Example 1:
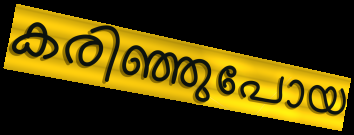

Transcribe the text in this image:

കരിഞ്ഞുപോയ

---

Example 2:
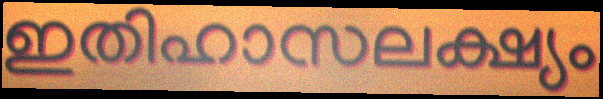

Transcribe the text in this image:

ഇതിഹാസലക്ഷ്യം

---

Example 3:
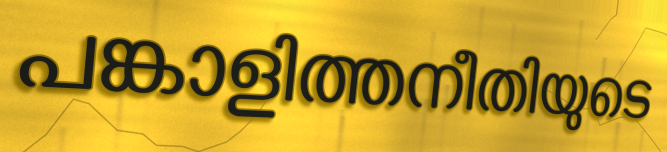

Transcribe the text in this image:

പങ്കാളിത്തനീതിയുടെ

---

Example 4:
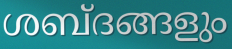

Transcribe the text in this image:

ശബ്ദങ്ങളും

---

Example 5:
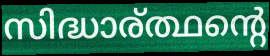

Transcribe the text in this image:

സിദ്ധാര്ത്ഥന്റെ